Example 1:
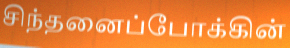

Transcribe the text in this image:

சிந்தனைப்போக்கின்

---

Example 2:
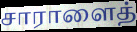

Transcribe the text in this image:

சாராளைத்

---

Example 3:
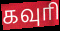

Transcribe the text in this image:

கவுரி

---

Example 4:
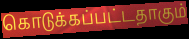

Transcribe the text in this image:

கொடுக்கப்பட்டதாகும்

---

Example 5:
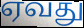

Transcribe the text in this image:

ஏவது